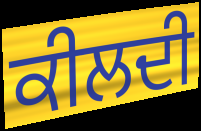
ਕੀਲਦੀ